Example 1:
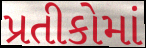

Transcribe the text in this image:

પ્રતીકોમાં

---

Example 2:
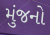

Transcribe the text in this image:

મુંજનો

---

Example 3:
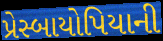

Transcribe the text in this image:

પ્રેસ્બાયોપિયાની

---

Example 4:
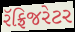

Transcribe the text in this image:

રૅફ્રિજરેટર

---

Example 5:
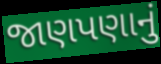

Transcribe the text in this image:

જાણપણાનું